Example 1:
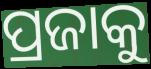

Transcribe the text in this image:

ପ୍ରଜାକୁ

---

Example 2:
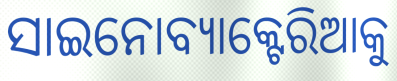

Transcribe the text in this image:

ସାଇନୋବ୍ୟାକ୍ଟେରିଆକୁ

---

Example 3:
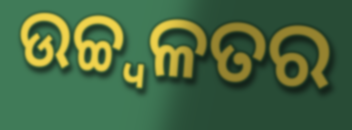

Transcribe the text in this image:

ଉଚ୍ଚ୍ୱଳତର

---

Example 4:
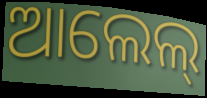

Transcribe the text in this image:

ଆଲେଲ୍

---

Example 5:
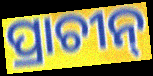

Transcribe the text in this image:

ପ୍ରାଚୀନ୍